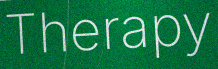
Therapy